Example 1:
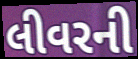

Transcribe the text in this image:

લીવરની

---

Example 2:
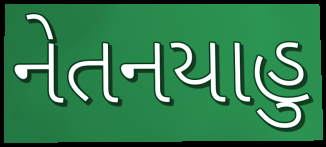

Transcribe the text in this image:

નેતનયાહુ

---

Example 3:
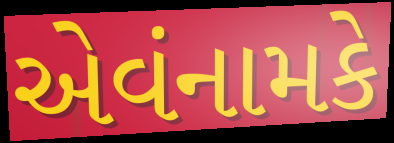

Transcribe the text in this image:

એવંનામકે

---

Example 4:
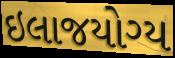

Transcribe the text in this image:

ઇલાજયોગ્ય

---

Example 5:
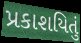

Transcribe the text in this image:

પ્રકાશયિતું